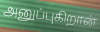
அனுப்புகிறான்